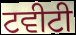
ਟਵੀਟੀ